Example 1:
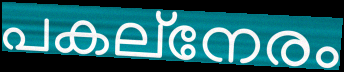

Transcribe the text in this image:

പകല്നേരം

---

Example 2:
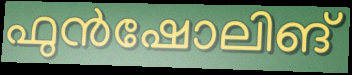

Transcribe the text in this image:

ഫുൻഷോലിങ്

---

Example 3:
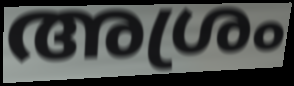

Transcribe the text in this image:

അശ്രം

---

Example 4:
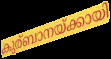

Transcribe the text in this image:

കുര്ബാനയ്ക്കായി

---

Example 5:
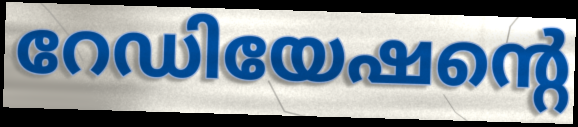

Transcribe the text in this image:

റേഡിയേഷന്റെ